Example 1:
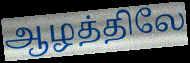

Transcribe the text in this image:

ஆழத்திலே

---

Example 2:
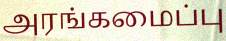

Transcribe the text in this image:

அரங்கமைப்பு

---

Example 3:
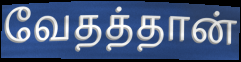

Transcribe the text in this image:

வேதத்தான்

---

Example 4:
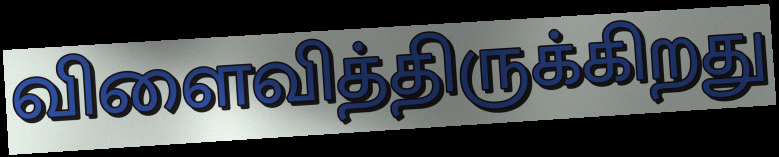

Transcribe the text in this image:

விளைவித்திருக்கிறது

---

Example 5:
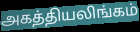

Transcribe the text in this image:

அகத்தியலிங்கம்